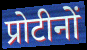
प्रोटीनों